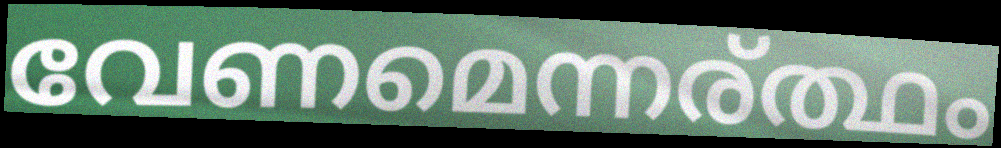
വേണമെന്നര്ത്ഥം